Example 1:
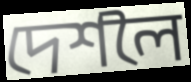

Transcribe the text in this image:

দেশলৈ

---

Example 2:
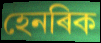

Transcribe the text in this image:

হেনৰিক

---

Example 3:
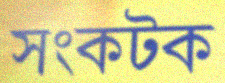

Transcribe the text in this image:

সংকটক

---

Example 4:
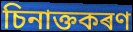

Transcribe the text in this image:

চিনাক্তকৰণ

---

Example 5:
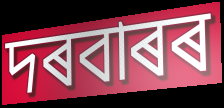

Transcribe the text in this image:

দৰবাৰৰ